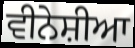
ਵੀਨੇਸ਼ੀਆ